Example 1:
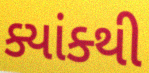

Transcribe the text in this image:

ક્યાંક્થી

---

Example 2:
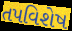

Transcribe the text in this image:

તપવિશેષ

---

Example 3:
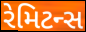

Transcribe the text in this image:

રેમિટન્સ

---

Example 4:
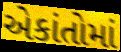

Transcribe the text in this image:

એકાંતોમાં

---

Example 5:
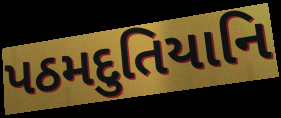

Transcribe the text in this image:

પઠમદુતિયાનિ